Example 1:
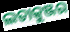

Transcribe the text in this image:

ଲତାକୁଞ୍ଜର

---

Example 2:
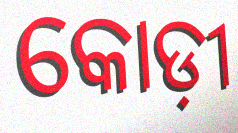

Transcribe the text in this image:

କୋଡ଼ୀ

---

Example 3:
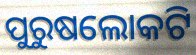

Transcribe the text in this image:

ପୁରୁଷଲୋକଟି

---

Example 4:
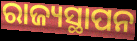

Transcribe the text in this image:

ରାଜ୍ୟସ୍ଥାପନ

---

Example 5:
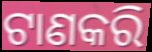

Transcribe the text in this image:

ଟାଣକରି